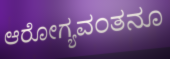
ಆರೋಗ್ಯವಂತನೂ